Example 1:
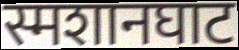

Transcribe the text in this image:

स्मशानघाट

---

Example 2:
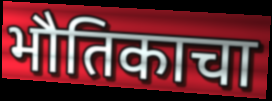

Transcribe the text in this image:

भौतिकाचा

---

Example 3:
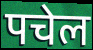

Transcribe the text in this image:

पचेल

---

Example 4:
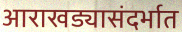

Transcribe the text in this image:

आराखड्यासंदर्भात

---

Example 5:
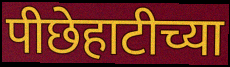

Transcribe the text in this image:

पीछेहाटीच्या